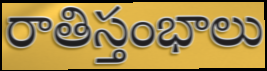
రాతిస్తంభాలు